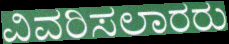
ವಿವರಿಸಲಾರರು